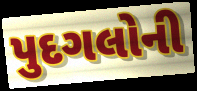
પુદગલોની